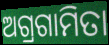
ଅଗ୍ରଗାମିତା